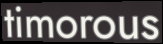
timorous